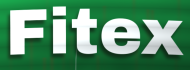
Fitex